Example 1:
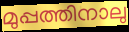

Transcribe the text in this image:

മുപ്പത്തിനാലു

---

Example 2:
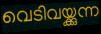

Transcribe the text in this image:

വെടിവയ്ക്കുന്ന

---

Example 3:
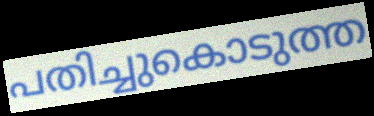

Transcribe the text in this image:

പതിച്ചുകൊടുത്ത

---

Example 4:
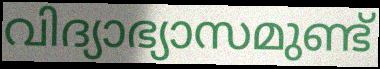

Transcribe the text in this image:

വിദ്യാഭ്യാസമുണ്ട്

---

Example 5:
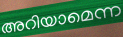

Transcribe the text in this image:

അറിയാമെന്ന